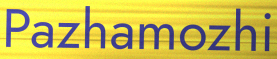
Pazhamozhi